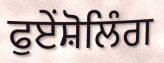
ਫੁਏਂਸ਼ੋਲਿੰਗ